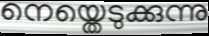
നെയ്തെടുക്കുന്നു